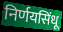
निर्णयसिंधू